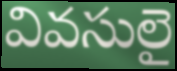
వివసులై